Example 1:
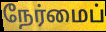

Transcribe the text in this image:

நேர்மைப்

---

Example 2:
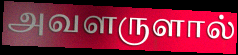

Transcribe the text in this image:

அவளருளால்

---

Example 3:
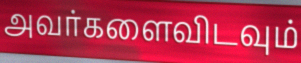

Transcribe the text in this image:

அவர்களைவிடவும்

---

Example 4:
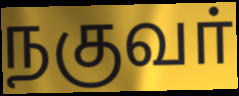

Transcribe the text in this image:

நகுவர்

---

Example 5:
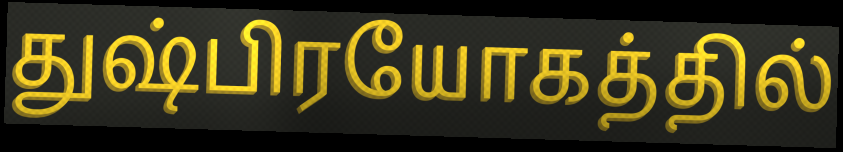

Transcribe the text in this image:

துஷ்பிரயோகத்தில்